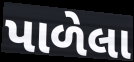
પાળેલા